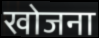
खोजना